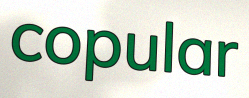
copular